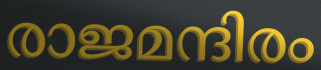
രാജമന്ദിരം